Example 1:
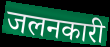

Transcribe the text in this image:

जलनकारी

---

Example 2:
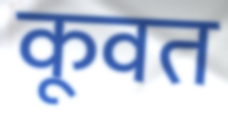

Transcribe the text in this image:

कूवत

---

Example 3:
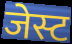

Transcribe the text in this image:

जेस्‍ट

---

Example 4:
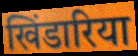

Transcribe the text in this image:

खिंडारिया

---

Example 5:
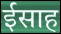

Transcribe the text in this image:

ईसाह